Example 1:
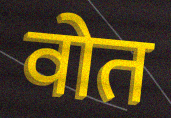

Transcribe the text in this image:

वोत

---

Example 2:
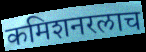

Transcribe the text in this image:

कमिशनरलाच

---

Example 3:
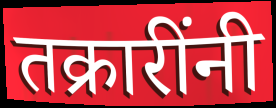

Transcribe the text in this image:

तक्रारींनी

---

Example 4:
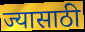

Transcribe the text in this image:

ज्यासाठी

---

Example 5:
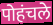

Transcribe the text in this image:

पोहंचले